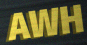
AWH